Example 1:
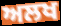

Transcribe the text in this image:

ਅਲਖ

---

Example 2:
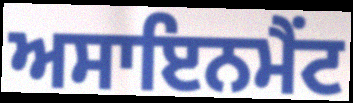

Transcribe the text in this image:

ਅਸਾਇਨਮੈਂਟ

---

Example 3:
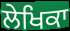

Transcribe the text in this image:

ਲੇਖਿਕਾ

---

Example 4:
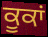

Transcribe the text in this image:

ਕੂਕਾਂ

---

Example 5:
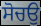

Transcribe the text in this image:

ਸੋਚਉ